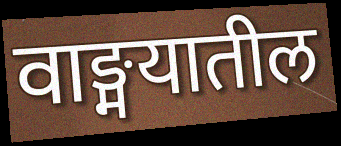
वाङ्मयातील